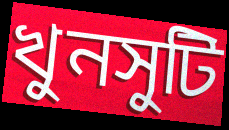
খুনসুটি